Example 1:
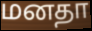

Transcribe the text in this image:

மனதா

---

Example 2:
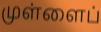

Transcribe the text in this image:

முள்ளைப்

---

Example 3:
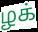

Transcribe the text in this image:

ழக்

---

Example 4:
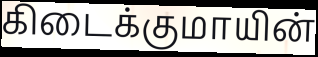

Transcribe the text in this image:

கிடைக்குமாயின்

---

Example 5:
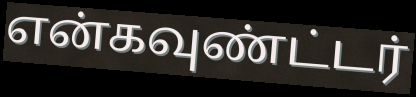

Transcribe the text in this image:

என்கவுண்ட்டர்